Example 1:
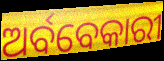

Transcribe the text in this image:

ଅର୍ବବେକାରୀ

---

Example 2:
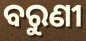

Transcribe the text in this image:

ବରୁଣୀ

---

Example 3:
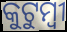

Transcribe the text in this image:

କୁଟୁମ୍ୱୀ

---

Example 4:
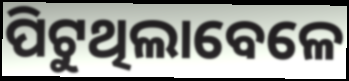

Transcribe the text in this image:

ପିଟୁଥିଲାବେଳେ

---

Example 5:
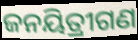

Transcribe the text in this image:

ଜନୟିତ୍ରୀଗଣ